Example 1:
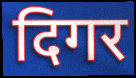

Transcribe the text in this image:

दिगर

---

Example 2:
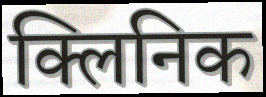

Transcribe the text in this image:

क्लिनिक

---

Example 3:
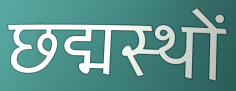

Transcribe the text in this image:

छद्मस्थों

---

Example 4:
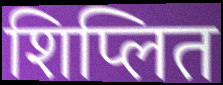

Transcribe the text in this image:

शिप्लित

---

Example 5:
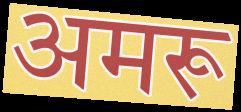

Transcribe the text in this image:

अमरू